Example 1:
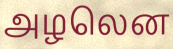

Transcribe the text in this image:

அழலென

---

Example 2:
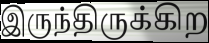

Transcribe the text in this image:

இருந்திருக்கிற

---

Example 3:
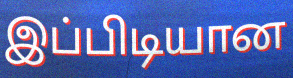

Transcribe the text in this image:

இப்பிடியான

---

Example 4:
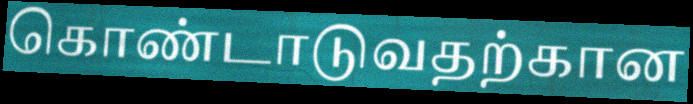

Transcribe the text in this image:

கொண்டாடுவதற்கான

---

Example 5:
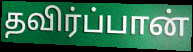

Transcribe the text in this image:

தவிர்ப்பான்